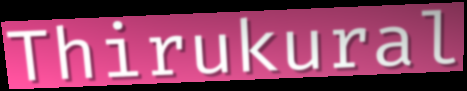
Thirukural